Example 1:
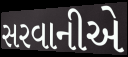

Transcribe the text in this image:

સરવાનીએ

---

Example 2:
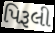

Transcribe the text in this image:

પિરૂલી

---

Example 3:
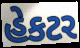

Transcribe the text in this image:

હેકટર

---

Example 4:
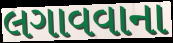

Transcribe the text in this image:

લગાવવાના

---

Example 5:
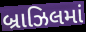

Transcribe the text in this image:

બ્રાઝિલમાં